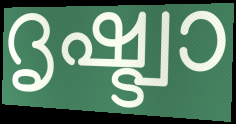
ദൃഷ്ട്വാ